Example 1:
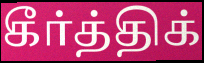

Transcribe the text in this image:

கீர்த்திக்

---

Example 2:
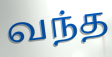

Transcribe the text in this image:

வந்த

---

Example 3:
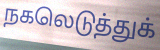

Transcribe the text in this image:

நகலெடுத்துக்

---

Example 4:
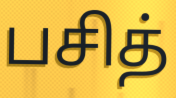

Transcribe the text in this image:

பசித்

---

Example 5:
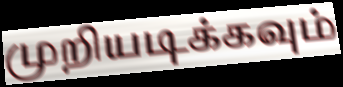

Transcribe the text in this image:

முறியடிக்கவும்